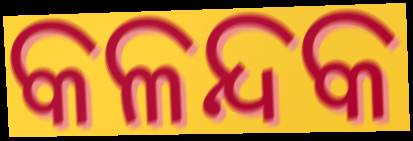
କଳନ୍ଦକ